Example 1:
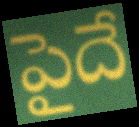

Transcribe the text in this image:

పైదే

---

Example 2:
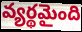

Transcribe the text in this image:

వ్యర్థమైంది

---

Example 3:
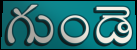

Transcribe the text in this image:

గుండె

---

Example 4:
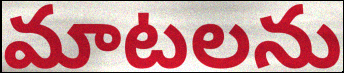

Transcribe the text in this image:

మాటలను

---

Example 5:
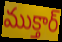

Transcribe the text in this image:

ముక్తార్